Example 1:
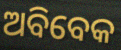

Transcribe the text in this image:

ଅବିବେକ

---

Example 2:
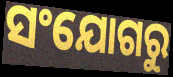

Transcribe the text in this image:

ସଂଯୋଗରୁ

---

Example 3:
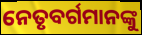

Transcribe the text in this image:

ନେତୃବର୍ଗମାନଙ୍କୁ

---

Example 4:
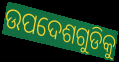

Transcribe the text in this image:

ଉପଦେଶଗୁଡିକୁ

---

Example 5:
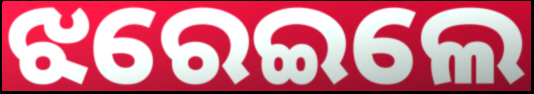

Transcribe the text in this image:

ଝରେଇଲେ